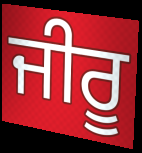
ਜੀਰੂ